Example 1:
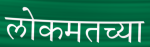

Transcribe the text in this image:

लोकमतच्या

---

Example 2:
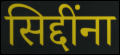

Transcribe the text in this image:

सिद्दींना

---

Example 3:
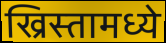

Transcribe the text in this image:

ख्रिस्तामध्ये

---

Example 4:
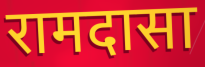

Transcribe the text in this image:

रामदासा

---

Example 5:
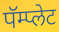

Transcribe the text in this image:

पॅम्प्लेट